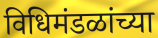
विधिमंडळांच्या